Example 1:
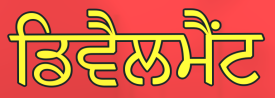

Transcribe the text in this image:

ਡਿਵੈਲਮੈਂਟ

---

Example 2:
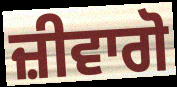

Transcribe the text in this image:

ਜ਼ੀਵਾਗੋ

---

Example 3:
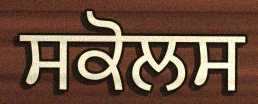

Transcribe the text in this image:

ਸਕੋਲਸ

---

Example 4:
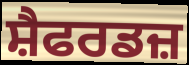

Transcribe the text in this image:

ਸ਼ੈਫਰਡਜ਼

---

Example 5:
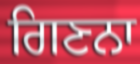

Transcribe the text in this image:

ਗਿਣਨਾ